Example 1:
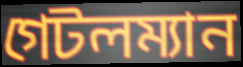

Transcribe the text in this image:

গেটলম্যান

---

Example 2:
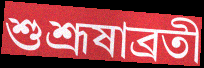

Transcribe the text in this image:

শুশ্রূষাব্রতী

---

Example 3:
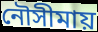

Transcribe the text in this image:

নৌসীমায়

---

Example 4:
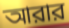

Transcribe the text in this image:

আরার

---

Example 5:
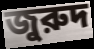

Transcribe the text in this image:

জুরুদ